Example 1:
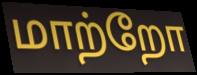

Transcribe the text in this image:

மாற்றோ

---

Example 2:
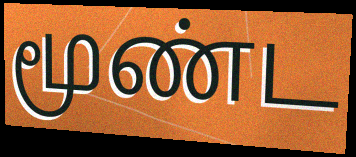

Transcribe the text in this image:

மூண்ட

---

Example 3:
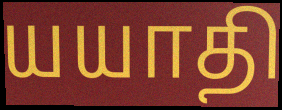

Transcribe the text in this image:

யயாதி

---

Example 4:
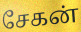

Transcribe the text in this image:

சேகன்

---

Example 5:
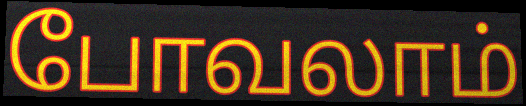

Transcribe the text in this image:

போவலாம்